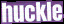
huckle